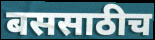
बससाठीच